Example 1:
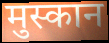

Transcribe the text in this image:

मुस्‍कान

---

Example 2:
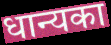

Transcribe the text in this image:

धान्यका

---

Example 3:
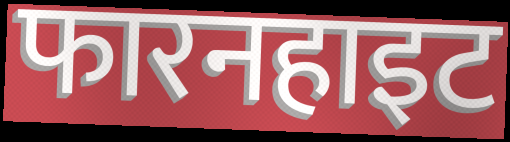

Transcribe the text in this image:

फारनहाइट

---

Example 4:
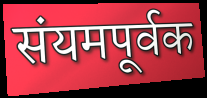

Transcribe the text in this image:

संयमपूर्वक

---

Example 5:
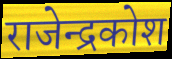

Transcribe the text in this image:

राजेन्द्रकोश